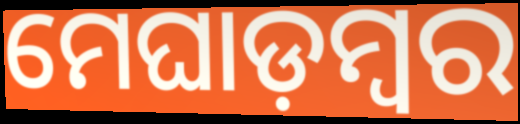
ମେଘାଡ଼ମ୍ବର